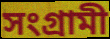
সংগ্ৰামী